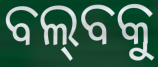
ବଲ୍‌ବକୁ